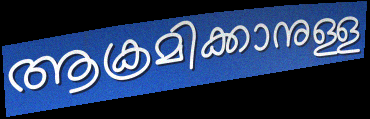
ആക്രമിക്കാനുള്ള